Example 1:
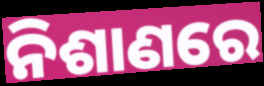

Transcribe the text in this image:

ନିଶାଣରେ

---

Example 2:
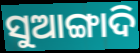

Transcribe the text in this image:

ସୁଆଙ୍ଗାଦି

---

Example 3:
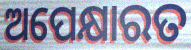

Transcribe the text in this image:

ଅପେକ୍ଷାରତ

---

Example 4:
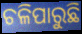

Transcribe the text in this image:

ଚଳିପାରୁଛି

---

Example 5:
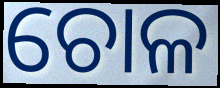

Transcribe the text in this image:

ଚୋଳ